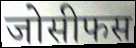
जोसीफस